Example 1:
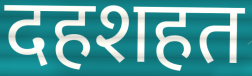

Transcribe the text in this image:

दहशहत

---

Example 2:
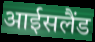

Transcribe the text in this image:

आईसलैंड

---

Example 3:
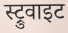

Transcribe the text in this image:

स्ट्रुवाइट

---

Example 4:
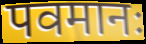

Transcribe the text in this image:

पवमानः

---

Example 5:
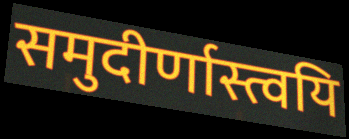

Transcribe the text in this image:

समुदीर्णास्त्वयि